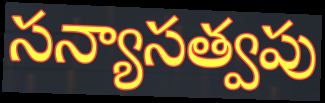
సన్యాసత్వపు